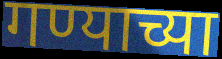
गण्याच्या